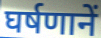
घर्षणानें